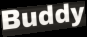
Buddy